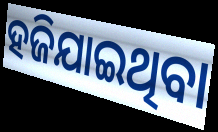
ହଜିଯାଇଥିବା